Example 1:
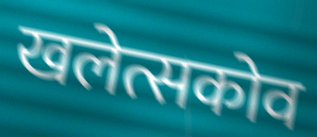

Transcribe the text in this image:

खलेत्सकोव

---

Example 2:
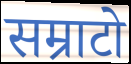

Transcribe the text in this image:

सम्राटो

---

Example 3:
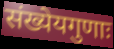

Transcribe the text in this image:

संख्येयगुणाः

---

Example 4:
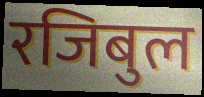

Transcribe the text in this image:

रजिबुल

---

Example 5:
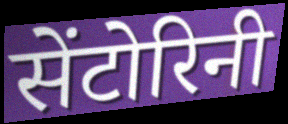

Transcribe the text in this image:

सेंटोरिनी